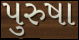
પુરુષા